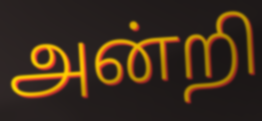
அன்றி